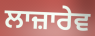
ਲਾਜ਼ਾਰੇਵ